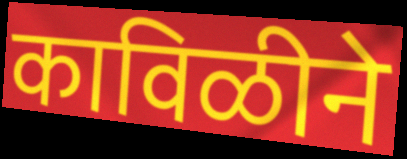
काविळीने